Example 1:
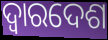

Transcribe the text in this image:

ଦ୍ଵାରଦେଶ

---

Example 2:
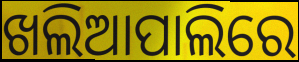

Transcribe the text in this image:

ଖଲିଆପାଲିରେ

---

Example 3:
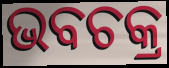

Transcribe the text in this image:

ଭବଚକ୍ର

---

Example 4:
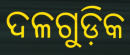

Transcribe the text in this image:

ଦଳଗୁଡ଼ିକ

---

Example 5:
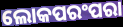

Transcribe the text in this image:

ଲୋକପରଂପରା